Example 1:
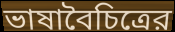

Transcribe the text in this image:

ভাষাবৈচিত্রের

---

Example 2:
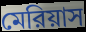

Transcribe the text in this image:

মেরিয়াস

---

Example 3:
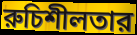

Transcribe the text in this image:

রুচিশীলতার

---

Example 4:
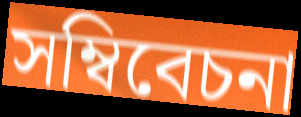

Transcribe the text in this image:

সম্বিবেচনা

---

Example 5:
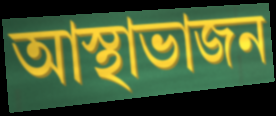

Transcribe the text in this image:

আস্থাভাজন